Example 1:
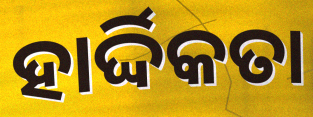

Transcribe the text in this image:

ହାର୍ଦ୍ଦିକତା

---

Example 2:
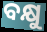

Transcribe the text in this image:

ବକ୍ଷୁ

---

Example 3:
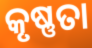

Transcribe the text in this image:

କୃଷ୍ଣତା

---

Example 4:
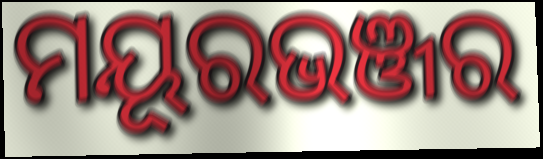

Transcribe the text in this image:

ମୟୂରଭଞ୍ଜର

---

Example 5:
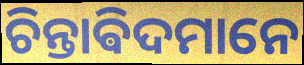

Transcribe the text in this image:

ଚିନ୍ତାଵିଦମାନେ